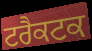
ਟਰੈਕਟਕ